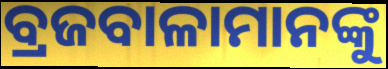
ବ୍ରଜବାଳାମାନଙ୍କୁ